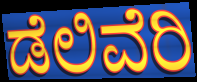
ಡೆಲಿವೆರಿ